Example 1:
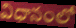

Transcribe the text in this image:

విధానంలో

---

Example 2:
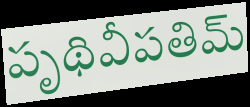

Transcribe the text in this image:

పృథివీపతిమ్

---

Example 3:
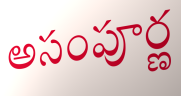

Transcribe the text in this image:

అసంపూర్ణ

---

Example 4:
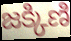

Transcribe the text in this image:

జక్కిణి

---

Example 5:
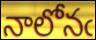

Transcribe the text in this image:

నాలోనఁ